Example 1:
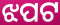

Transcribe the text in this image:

ଝପଟ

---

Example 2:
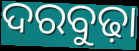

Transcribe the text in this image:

ଦରବୁଢ଼ା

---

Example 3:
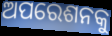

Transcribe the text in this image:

ଅପରେଶନକୁ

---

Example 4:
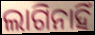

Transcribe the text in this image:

ଲାଗିନାହିଁ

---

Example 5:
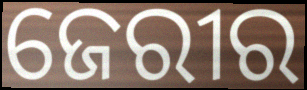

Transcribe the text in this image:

ଜେରୀର